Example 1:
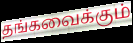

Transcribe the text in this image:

தங்கவைக்கும்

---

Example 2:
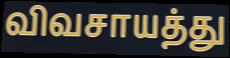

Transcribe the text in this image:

விவசாயத்து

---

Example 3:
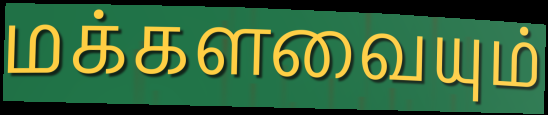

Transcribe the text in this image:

மக்களவையும்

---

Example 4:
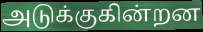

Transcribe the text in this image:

அடுக்குகின்றன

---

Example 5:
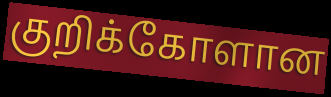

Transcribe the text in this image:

குறிக்கோளான